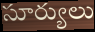
సూర్యులు